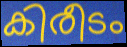
കിരീടം